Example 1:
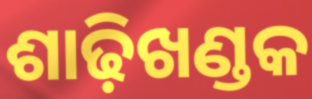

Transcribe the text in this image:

ଶାଢ଼ିଖଣ୍ଡକ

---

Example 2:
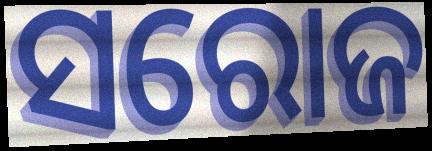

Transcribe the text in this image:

ସରୋଜ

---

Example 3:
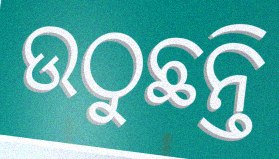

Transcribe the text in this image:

ଉଠୁଛନ୍ତି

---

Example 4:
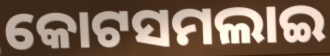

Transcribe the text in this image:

କୋଟସମଲାଇ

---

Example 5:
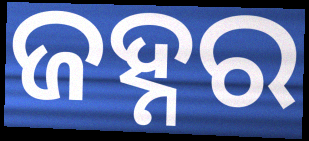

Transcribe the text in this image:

ଜହ୍ନର